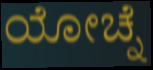
ಯೋಚ್ನೆ